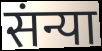
संन्या